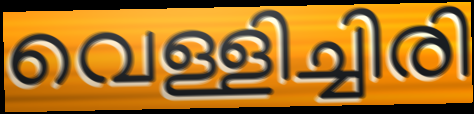
വെള്ളിച്ചിരി